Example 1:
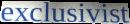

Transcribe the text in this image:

exclusivist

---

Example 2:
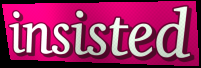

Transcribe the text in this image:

insisted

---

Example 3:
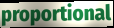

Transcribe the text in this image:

proportional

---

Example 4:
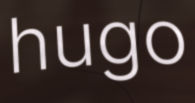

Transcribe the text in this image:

hugo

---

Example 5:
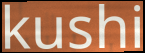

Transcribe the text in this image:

kushi